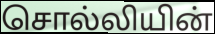
சொல்லியின்